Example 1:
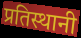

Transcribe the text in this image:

प्रतिस्थानी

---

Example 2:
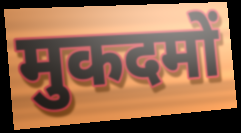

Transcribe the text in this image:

मुकदमों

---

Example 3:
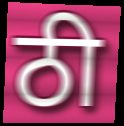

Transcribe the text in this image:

ठी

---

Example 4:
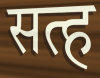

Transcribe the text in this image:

सत्ह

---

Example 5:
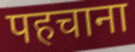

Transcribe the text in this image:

पहचाना